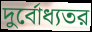
দুর্বোধ্যতর